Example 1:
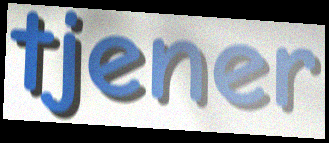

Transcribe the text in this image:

tjener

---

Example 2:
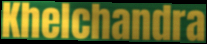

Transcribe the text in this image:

Khelchandra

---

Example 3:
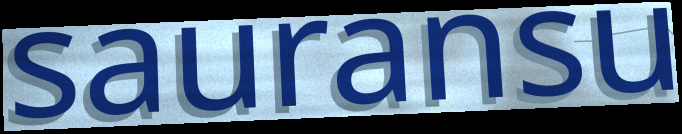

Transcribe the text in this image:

sauransu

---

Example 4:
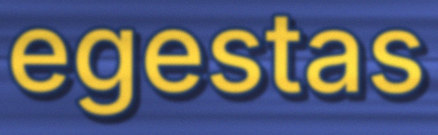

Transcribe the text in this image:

egestas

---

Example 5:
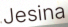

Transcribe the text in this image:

Jesina